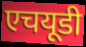
एचयूडी